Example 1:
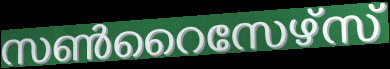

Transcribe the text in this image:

സൺറൈസേഴ്സ്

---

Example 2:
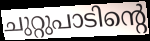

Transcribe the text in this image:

ചുറ്റുപാടിന്റെ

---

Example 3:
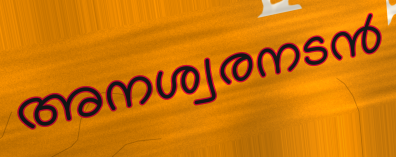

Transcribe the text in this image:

അനശ്വരനടൻ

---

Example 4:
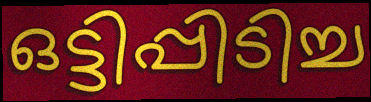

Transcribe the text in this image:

ഒട്ടിപ്പിടിച്ച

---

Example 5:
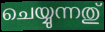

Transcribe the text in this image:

ചെയ്യുന്നതു്